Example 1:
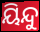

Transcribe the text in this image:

ୟିନ୍ଦୁ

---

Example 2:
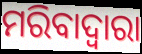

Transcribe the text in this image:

ମରିବାଦ୍ୱାରା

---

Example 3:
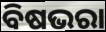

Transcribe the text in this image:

ବିଷଭରା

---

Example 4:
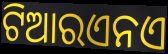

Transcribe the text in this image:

ଟିଆରଏନଏ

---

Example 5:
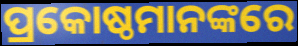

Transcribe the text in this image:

ପ୍ରକୋଷ୍ଠମାନଙ୍କରେ